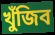
খুঁজিব